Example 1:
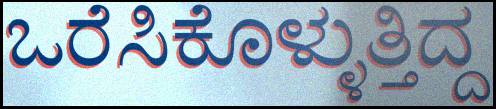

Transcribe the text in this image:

ಒರೆಸಿಕೊಳ್ಳುತ್ತಿದ್ದ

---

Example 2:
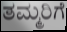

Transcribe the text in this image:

ತಮ್ಮರಿಗೆ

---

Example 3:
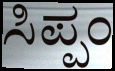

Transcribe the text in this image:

ಸಿಪ್ಪಂ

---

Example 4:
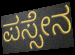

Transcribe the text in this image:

ಪಸ್ಸೇನ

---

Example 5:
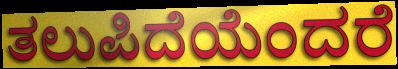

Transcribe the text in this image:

ತಲುಪಿದೆಯೆಂದರೆ